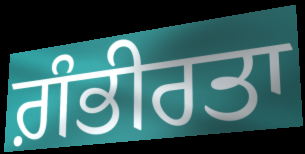
ਗ਼ੰਭੀਰਤਾ